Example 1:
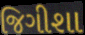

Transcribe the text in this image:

જિગીશા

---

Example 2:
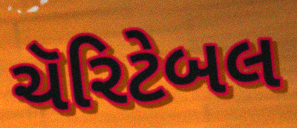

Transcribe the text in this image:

ચૅરિટેબલ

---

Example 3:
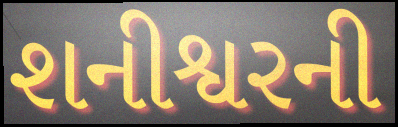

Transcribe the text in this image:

શનીશ્વરની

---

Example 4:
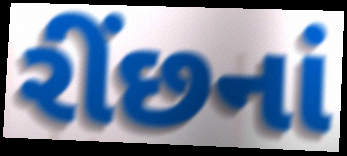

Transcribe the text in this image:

રીંછનાં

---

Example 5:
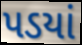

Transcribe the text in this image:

પડયાં